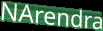
NArendra